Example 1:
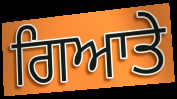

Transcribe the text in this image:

ਗਿਆਤੇ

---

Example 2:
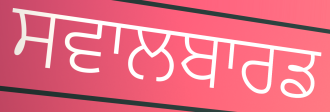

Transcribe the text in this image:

ਸਵਾਲਬਾਰਡ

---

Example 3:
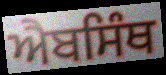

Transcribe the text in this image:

ਐਬਸਿੰਥ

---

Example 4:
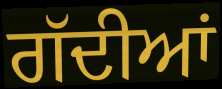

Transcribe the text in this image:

ਗੱਦੀਆਂ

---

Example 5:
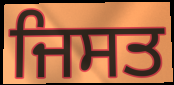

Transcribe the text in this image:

ਜਿਸਤ